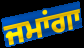
ਜਮਾਂਗਾ